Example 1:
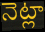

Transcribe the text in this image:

నెట్లా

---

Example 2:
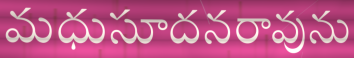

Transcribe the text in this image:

మధుసూదనరావును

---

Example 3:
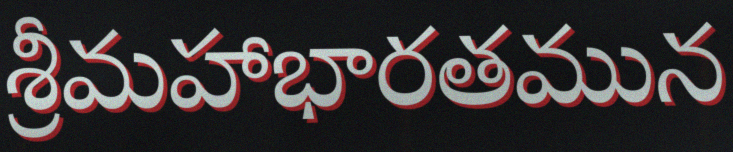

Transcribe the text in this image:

శ్రీమహాభారతమున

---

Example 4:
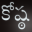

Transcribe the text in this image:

కోష్ఠ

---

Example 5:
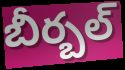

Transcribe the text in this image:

బీర్బల్